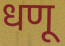
धणू